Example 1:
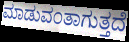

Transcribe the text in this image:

ಮಾಡುವಂತಾಗುತ್ತದೆ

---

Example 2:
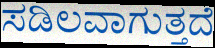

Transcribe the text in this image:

ಸಡಿಲವಾಗುತ್ತದೆ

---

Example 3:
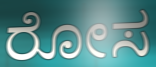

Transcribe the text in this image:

ರೋಸ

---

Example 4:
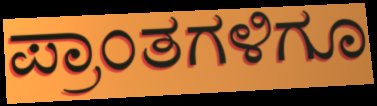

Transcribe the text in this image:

ಪ್ರಾಂತಗಳಿಗೂ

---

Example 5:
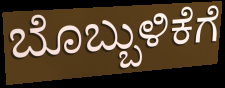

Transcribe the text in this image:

ಬೊಬ್ಬುಳಿಕೆಗೆ